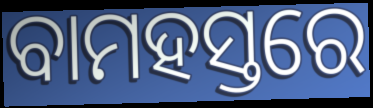
ବାମହସ୍ତରେ